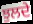
ਝੁਲਦੇ